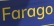
Farago